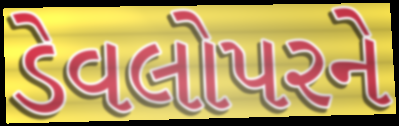
ડેવલોપરને